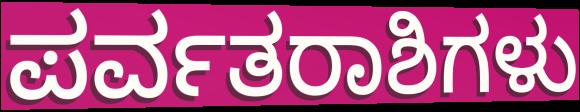
ಪರ್ವತರಾಶಿಗಳು